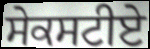
ਸੇਕਸਟੀਏ